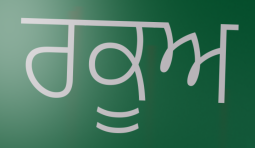
ਰਕੂਅ